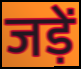
जड़ें